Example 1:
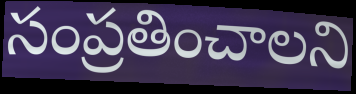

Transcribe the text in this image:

సంప్రతించాలని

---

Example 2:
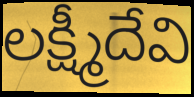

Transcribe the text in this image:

లక్ష్మీదేవి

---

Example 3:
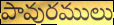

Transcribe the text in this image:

పావురములు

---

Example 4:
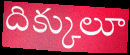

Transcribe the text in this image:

దిక్కులూ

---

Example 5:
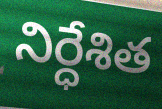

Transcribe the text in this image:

నిర్ధేశిత